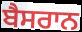
ਬੈਸਰਾਨ